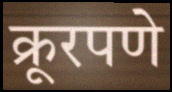
क्रूरपणे